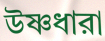
উষ্ণধারা